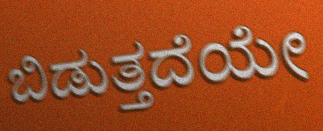
ಬಿಡುತ್ತದೆಯೇ